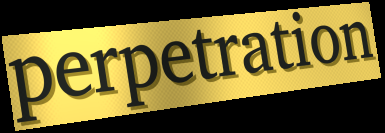
perpetration